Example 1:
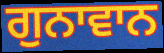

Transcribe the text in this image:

ਗੁਨਾਵਾਨ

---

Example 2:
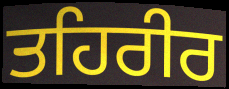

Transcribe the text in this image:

ਤਹਿਰੀਰ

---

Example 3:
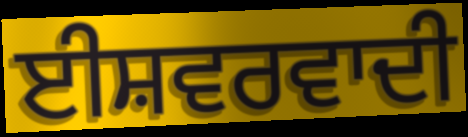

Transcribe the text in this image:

ਈਸ਼ਵਰਵਾਦੀ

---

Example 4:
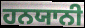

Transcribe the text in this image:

ਹਨਯਾਨੀ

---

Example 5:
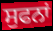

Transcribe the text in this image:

ਸੁਫਨਾਂ